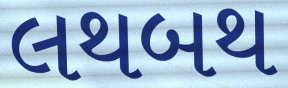
લથબથ